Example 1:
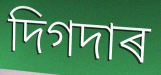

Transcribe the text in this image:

দিগদাৰ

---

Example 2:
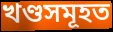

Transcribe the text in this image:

খণ্ডসমূহত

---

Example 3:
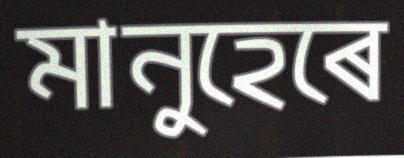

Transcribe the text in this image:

মানুহেৰে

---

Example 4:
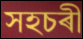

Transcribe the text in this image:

সহচৰী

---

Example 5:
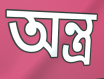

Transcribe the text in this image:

অন্ত্ৰ